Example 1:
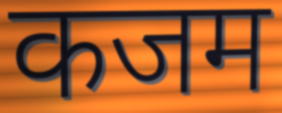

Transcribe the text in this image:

कजम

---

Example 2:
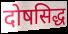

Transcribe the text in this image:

दोषसिद्ध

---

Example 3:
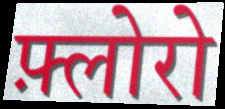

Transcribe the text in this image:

फ़्लोरो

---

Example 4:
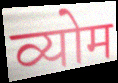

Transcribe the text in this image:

व्योम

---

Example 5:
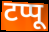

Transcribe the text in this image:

टप्पू